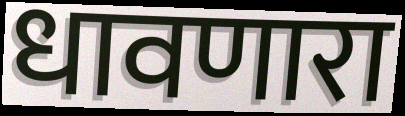
धावणारा